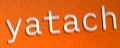
yatach